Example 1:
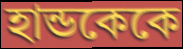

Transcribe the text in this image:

হান্ডকেকে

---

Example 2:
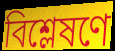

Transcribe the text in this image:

বিশ্লেষণে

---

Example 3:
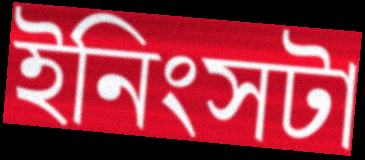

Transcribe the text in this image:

ইনিংসটা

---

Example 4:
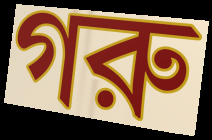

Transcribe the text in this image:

গরু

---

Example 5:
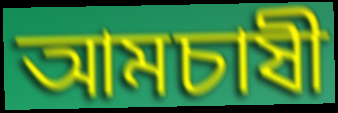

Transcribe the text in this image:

আমচাষী